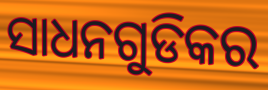
ସାଧନଗୁଡିକର